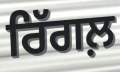
ਰਿੱਗਲ਼